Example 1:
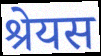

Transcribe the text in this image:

श्रेयस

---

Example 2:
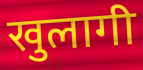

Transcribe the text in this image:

खुलागी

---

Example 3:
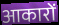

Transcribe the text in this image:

आकारों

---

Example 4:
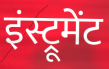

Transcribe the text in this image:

इंस्ट्रूमेंट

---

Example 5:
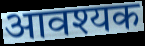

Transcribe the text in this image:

आवश्यक